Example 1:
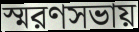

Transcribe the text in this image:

স্মরণসভায়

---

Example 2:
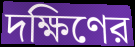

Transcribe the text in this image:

দক্ষিণের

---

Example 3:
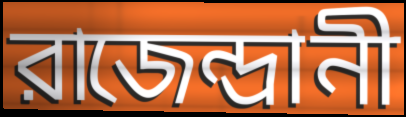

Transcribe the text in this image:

রাজেন্দ্রানী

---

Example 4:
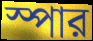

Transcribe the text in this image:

স্পার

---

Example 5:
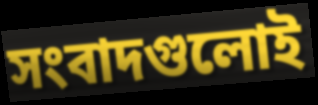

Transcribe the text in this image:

সংবাদগুলোই